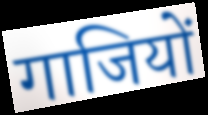
गाजियों